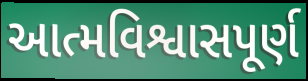
આત્મવિશ્વાસપૂર્ણ